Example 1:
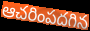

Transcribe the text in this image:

ఆచరింపదగిన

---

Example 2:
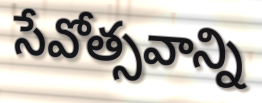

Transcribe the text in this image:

సేవోత్సవాన్ని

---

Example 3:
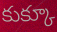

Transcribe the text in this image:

కుక్కూ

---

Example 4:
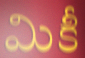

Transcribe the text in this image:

మికీ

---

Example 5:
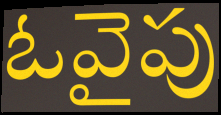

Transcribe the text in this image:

ఓవైపు